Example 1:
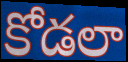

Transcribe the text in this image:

కోడలా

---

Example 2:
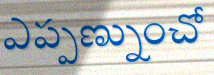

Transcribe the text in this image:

ఎప్పణ్నుంచో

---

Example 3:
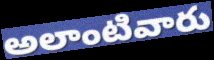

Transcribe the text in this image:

అలాంటివారు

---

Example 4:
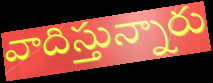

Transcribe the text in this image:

వాదిస్తున్నారు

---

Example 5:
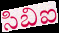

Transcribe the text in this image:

సిబిఐ